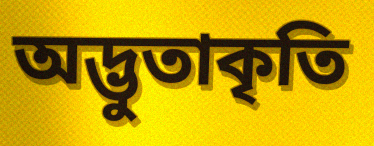
অদ্ভুতাকৃতি